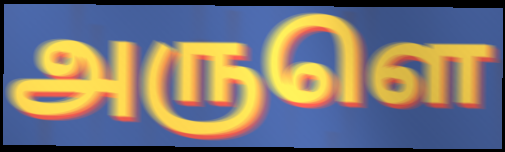
அருளெ